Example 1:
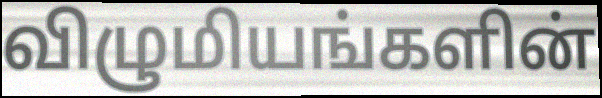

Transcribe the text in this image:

விழுமியங்களின்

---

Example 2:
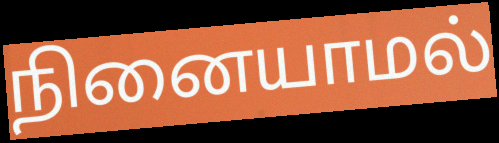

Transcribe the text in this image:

நினையாமல்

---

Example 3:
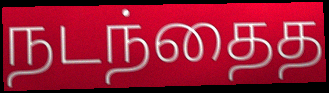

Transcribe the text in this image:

நடந்தைத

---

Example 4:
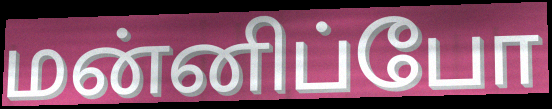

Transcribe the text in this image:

மன்னிப்போ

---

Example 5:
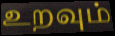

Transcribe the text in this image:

உறவும்